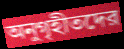
অনুগৃহীতদের